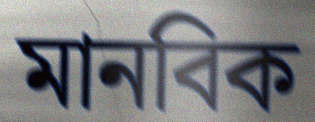
মানবিক